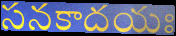
సనకాదయః